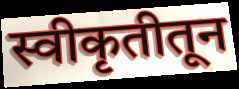
स्वीकृतीतून